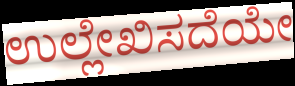
ಉಲ್ಲೇಖಿಸದೆಯೇ